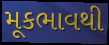
મૂકભાવથી